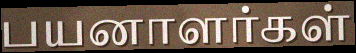
பயனாளர்கள்